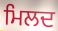
ਮਿਲਦ